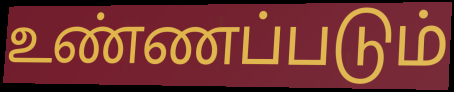
உண்ணப்படும்